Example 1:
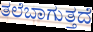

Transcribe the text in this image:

ತಲೆಬಾಗುತ್ತದೆ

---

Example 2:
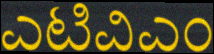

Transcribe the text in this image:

ಎಟಿವಿಎಂ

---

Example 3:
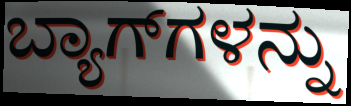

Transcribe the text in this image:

ಬ್ಯಾಗ್‌ಗಳನ್ನು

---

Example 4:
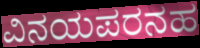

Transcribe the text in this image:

ವಿನಯಪರನಹ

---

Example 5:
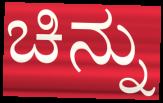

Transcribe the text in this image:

ಚಿನ್ನು